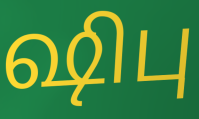
ஷிபு